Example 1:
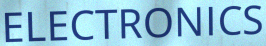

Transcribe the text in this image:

ELECTRONICS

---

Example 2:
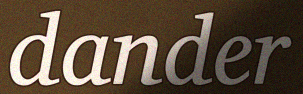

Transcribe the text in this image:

dander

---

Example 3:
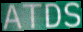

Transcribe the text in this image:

ATDS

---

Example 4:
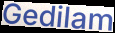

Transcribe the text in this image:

Gedilam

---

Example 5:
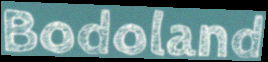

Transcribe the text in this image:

Bodoland